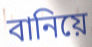
বানিয়ে